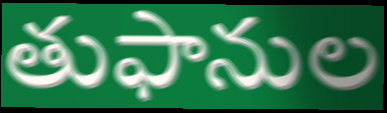
తుఫానుల